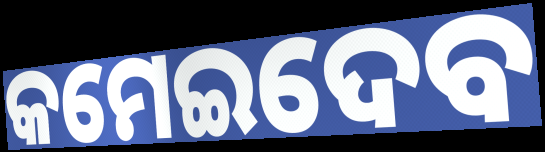
କମେଇଦେବ